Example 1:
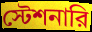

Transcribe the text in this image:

স্টেশনারি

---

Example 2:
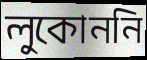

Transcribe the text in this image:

লুকোননি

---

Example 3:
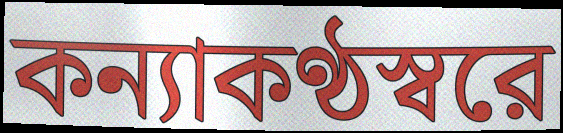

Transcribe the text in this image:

কন্যাকণ্ঠস্বরে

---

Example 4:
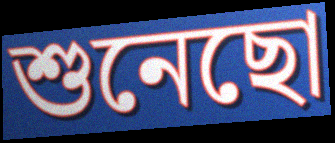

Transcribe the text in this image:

শুনেছো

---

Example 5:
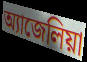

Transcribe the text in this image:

অ্যাজেলিয়া